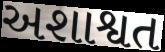
અશાશ્વત